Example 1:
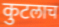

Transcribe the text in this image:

कुटलाच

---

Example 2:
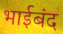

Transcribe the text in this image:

भाईबंद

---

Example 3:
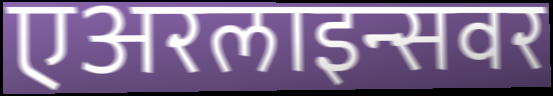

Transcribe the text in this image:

एअरलाइन्सवर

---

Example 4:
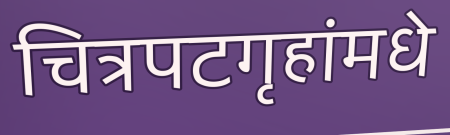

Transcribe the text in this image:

चित्रपटगृहांमधे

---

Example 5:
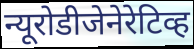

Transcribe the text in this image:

न्यूरोडीजेनेरेटिव्ह